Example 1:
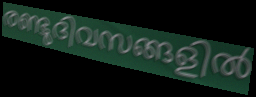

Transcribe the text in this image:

രണ്ടുദിവസങ്ങളിൽ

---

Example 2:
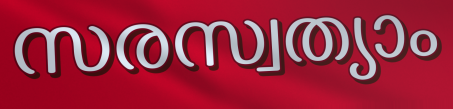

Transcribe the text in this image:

സരസ്വത്യാം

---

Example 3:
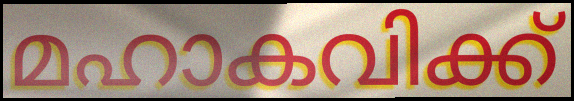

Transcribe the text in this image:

മഹാകവിക്ക്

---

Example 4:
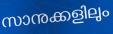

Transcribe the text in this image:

സാനുക്കളിലും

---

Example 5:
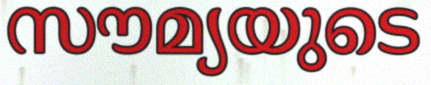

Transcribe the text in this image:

സൗമ്യയുടെ